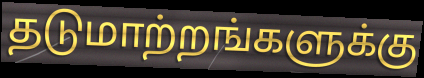
தடுமாற்றங்களுக்கு